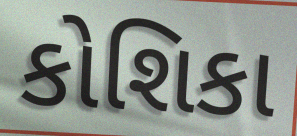
કોશિકા